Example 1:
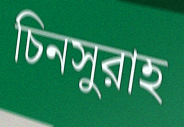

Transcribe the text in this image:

চিনসুরাহ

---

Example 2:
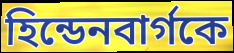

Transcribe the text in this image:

হিন্ডেনবার্গকে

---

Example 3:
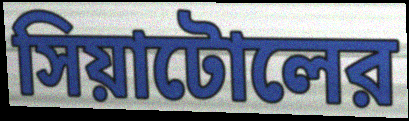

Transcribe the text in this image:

সিয়াটোলের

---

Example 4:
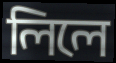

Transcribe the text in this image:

লিলে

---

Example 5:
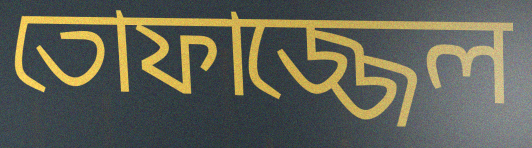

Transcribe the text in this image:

তোফাজ্জেল